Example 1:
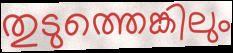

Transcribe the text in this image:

തുടുത്തെങ്കിലും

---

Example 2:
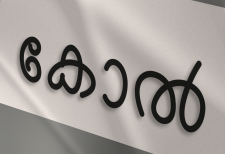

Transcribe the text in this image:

കോൽ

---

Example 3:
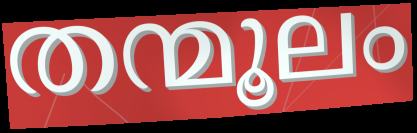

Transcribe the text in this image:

തന്മൂലം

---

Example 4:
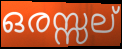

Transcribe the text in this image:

ഒരസ്സല്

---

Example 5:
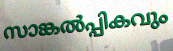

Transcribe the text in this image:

സാങ്കൽപ്പികവും